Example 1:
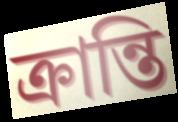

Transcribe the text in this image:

ক্ৰান্তি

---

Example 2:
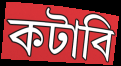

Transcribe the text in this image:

কটাবি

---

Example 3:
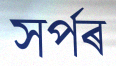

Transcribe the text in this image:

সৰ্পৰ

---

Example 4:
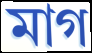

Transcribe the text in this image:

মাগ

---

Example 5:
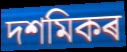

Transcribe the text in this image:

দশমিকৰ